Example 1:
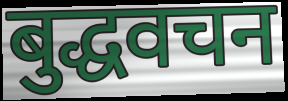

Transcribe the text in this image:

बुद्धवचन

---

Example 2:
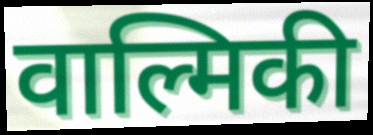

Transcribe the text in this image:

वाल्मिकी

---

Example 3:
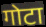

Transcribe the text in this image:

गोटा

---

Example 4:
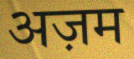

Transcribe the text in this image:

अज़म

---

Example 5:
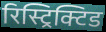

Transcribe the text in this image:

रिस्ट्रिक्टिड